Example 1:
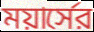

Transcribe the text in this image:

ময়ার্সের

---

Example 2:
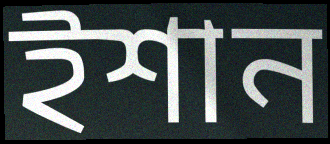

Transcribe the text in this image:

ইশান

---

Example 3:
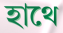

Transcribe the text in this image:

হাথে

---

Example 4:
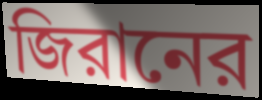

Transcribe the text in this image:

জিরানের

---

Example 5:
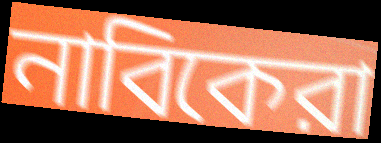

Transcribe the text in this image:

নাবিকেরা